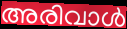
അരിവാൾ